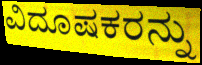
ವಿದೂಷಕರನ್ನು